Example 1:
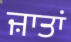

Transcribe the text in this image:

ਜ਼ਾਤਾਂ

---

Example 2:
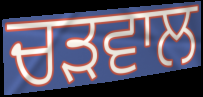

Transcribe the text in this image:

ਚੜਵਾਲ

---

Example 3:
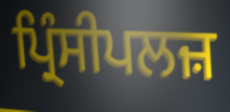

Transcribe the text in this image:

ਪ੍ਰਿੰਸੀਪਲਜ਼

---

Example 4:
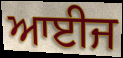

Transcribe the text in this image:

ਆਈਜ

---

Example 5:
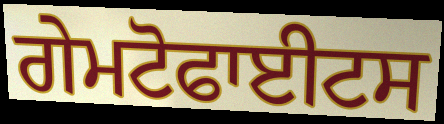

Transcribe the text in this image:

ਗੇਮਟੋਫਾਈਟਸ